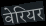
वेरियर